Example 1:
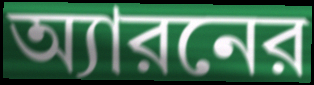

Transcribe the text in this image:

অ্যারনের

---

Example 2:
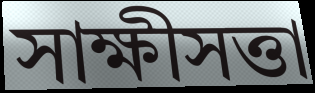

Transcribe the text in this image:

সাক্ষীসত্তা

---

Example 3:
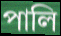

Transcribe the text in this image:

পালি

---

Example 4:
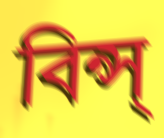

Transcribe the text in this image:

বিন্স্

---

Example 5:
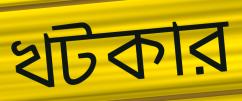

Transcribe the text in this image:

খটকার